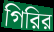
গিরির